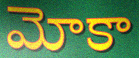
మోకా